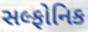
સલ્ફોનિક